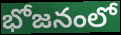
భోజనంలో